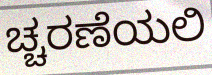
ಚ್ಚರಣೆಯಲಿ